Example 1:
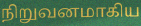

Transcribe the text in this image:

நிறுவனமாகிய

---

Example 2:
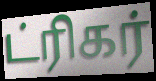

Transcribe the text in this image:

ட்ரிகர்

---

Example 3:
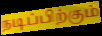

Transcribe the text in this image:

நடிப்பிற்கும்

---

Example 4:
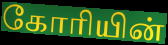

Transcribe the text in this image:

கோரியின்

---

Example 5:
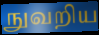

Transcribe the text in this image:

நுவறிய